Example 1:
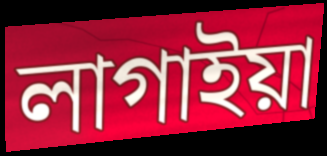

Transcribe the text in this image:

লাগাইয়া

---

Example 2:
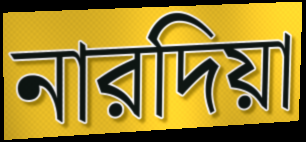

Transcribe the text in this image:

নারদিয়া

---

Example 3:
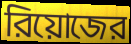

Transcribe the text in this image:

রিয়োজের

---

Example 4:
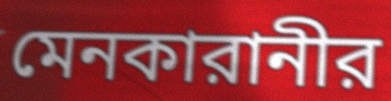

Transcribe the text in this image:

মেনকারানীর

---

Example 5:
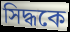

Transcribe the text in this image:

সিদ্ধকে